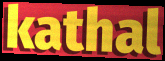
kathal